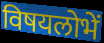
विषयलोभें